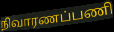
நிவாரணப்பணி